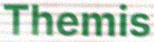
Themis